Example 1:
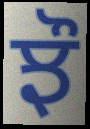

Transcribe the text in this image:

ਝੌ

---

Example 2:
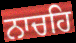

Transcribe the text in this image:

ਨਾਚਹਿ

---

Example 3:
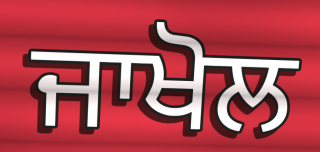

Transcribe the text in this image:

ਜਾਖੋਲ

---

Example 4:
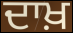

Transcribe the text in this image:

ਦਾਖ਼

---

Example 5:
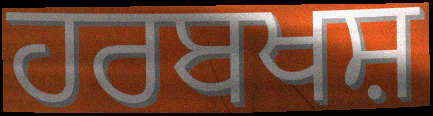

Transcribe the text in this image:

ਹਰਬਖਸ਼